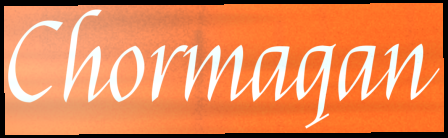
Chormaqan